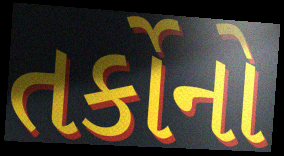
તર્કોનો